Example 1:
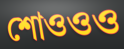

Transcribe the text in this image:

শোওওও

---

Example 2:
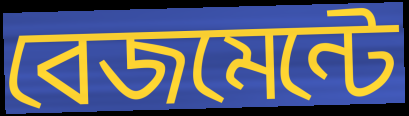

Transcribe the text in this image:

বেজমেন্টে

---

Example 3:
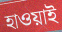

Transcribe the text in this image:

হাওয়াই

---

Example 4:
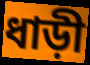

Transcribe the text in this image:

ধাড়ী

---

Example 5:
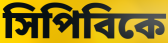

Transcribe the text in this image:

সিপিবিকে